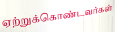
ஏற்றுக்கொண்டவர்கள்